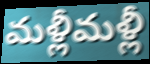
మళ్లీమళ్లీ